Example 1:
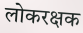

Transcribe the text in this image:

लोकरक्षक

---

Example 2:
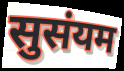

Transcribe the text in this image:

सुसंयम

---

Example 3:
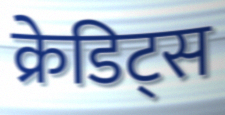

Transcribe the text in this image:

क्रेडिट्स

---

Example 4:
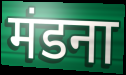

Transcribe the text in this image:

मंडना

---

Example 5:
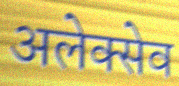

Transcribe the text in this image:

अलेक्सेव